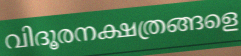
വിദൂരനക്ഷത്രങ്ങളെ